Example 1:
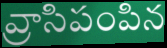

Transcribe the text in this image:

వ్రాసిపంపిన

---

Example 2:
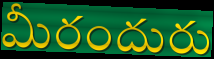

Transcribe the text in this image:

మీరందురు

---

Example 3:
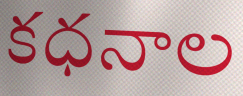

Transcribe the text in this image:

కధనాల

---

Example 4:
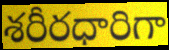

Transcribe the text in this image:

శరీరధారిగా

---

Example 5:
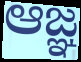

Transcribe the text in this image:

ఆజ్ఞ